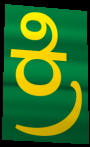
ಕ್ರಿ